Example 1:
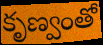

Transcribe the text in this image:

కృణ్వంతో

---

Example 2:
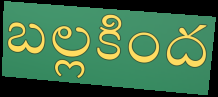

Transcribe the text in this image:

బల్లకింద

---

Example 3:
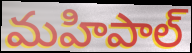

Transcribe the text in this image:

మహిపాల్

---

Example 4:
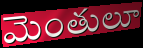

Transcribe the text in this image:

మెంతులూ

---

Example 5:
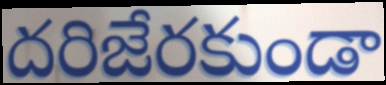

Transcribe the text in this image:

దరిజేరకుండా